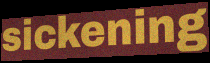
sickening